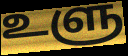
உளு